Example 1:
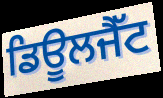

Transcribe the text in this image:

ਡਿਊਲਜੈੱਟ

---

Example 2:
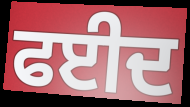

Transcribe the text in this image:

ਫਈਦ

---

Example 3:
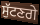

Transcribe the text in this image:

ਸੁੱਟਣਗੇ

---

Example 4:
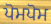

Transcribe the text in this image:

ਪੋਮਪੋਮ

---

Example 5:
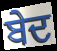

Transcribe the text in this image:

ਬੇਦ